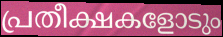
പ്രതീക്ഷകളോടും